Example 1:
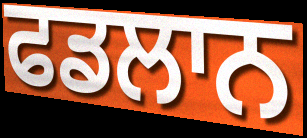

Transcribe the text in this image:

ਫਡਲਾਨ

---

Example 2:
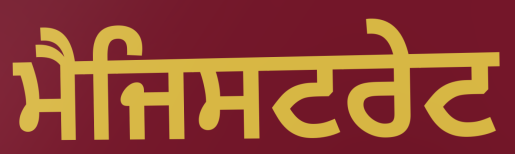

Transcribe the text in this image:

ਮੈਜਿਸਟਰੇਟ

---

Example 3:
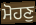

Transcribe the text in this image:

ਮੋਹਣੁ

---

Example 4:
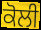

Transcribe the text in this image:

ਕੋਲੀ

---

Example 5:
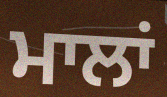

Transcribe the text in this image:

ਮਾਲਾਂ